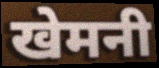
खेमनी